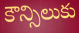
కౌన్సిలుకు